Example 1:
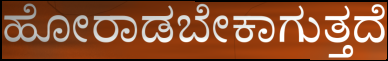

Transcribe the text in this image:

ಹೋರಾಡಬೇಕಾಗುತ್ತದೆ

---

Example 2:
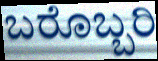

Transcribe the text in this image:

ಬರೊಬ್ಬರಿ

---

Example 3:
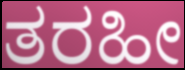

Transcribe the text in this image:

ತರಹೀ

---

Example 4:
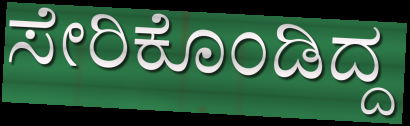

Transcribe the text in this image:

ಸೇರಿಕೊಂಡಿದ್ದ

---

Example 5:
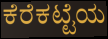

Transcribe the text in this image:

ಕೆರೆಕಟ್ಟೆಯ